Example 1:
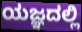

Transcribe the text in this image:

ಯಜ್ಞದಲ್ಲಿ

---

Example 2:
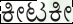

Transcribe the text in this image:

ಕೀಟಕೀ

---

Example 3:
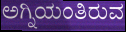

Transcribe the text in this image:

ಅಗ್ನಿಯಂತಿರುವ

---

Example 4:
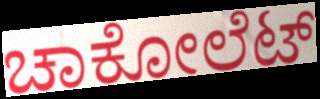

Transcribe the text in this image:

ಚಾಕೋಲೆಟ್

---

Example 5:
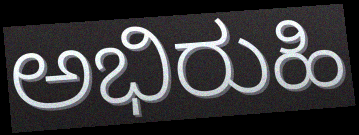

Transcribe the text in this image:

ಅಭಿರುಹಿ